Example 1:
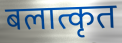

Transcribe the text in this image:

बलात्कृत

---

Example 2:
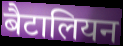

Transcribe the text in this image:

बैटालियन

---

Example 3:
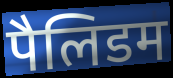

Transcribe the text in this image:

पैलिडम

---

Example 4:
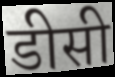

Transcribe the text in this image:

डीसी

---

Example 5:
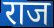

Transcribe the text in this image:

राज